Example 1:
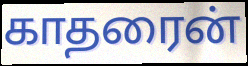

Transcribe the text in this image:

காதரைன்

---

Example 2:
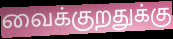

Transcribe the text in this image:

வைக்குறதுக்கு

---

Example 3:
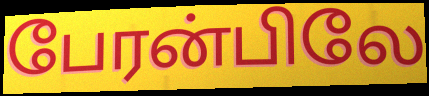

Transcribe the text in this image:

பேரன்பிலே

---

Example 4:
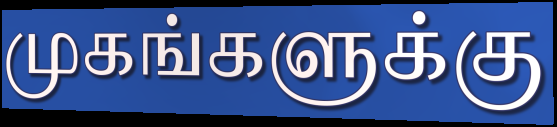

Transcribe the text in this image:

முகங்களுக்கு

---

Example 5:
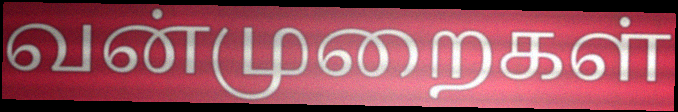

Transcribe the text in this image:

வன்முறைகள்